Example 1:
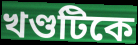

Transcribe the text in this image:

খণ্ডটিকে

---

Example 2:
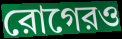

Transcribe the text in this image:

রোগেরও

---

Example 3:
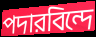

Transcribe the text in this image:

পদারবিন্দে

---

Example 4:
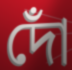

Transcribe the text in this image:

দোঁ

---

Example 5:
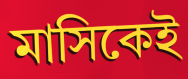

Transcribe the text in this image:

মাসিকেই